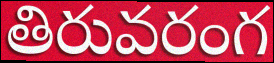
తిరువరంగ